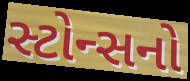
સ્ટોન્સનો